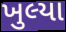
ખુલ્યા